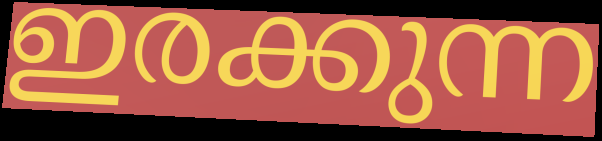
ഇരക്കുന്ന